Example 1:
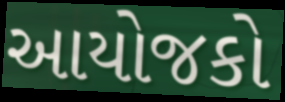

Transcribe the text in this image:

આયોજકો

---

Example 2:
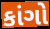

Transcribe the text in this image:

કાંગો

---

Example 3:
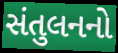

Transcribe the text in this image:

સંતુલનનો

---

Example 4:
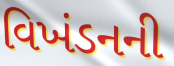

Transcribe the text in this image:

વિખંડનની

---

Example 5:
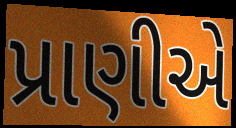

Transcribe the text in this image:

પ્રાણીએ